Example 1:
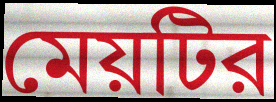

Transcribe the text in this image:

মেয়টির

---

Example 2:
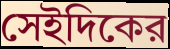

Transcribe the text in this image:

সেইদিকের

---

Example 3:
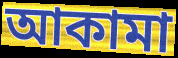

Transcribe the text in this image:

আকামা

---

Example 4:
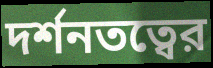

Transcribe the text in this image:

দর্শনতত্বের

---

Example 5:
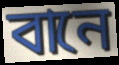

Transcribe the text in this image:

বানে